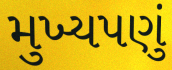
મુખ્યપણું